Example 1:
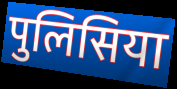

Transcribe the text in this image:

पुलिसिया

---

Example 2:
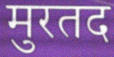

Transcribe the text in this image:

मुरतद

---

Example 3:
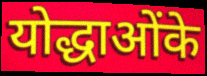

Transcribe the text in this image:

योद्धाओंके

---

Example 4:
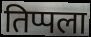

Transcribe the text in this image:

तिप्पला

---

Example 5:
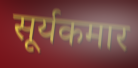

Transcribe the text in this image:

सूर्यकमार